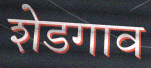
शेडगाव